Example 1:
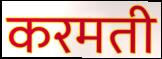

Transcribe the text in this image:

करमती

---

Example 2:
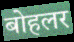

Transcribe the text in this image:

बोहलर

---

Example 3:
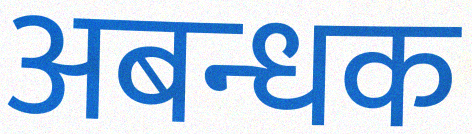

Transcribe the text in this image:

अबन्धक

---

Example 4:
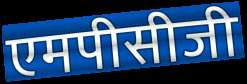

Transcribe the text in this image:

एमपीसीजी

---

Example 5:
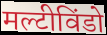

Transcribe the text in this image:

मल्टीविंडो